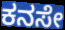
ಕನಸೇ